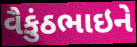
વૈકુંઠભાઇને